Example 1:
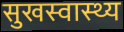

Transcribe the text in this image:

सुखस्वास्थ्य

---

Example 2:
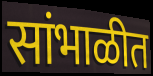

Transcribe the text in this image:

सांभाळीत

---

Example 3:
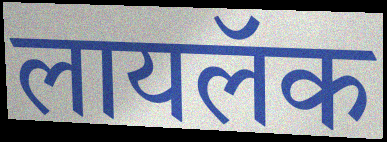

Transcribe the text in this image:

लायलॅक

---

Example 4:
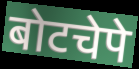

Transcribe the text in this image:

बोटचेपे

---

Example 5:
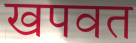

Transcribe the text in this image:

खपवत